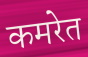
कमरेत